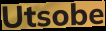
Utsobe